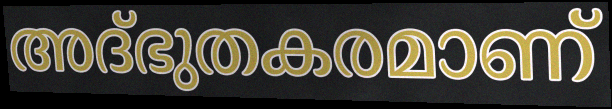
അദ്ഭുതകരമാണ്